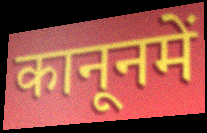
कानूनमें